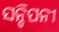
ସନ୍ଦିପନୀ